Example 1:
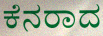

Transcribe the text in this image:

ಕೆನರಾದ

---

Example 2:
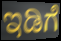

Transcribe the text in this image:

ಇಡಿಗೆ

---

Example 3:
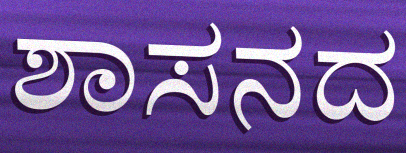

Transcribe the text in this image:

ಶಾಸನದ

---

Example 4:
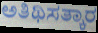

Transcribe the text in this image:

ಅತಿಥಿಸತ್ಕಾರ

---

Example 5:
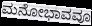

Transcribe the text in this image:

ಮನೋಭಾವವೂ